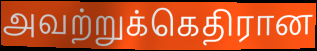
அவற்றுக்கெதிரான